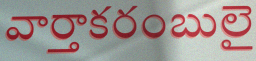
వార్తాకరంబులై